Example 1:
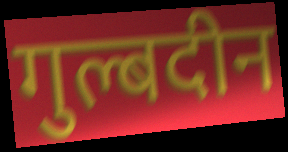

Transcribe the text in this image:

गुल्बदीन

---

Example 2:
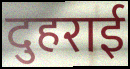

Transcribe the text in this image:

दुहराई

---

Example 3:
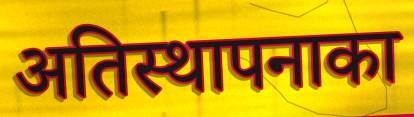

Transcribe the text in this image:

अतिस्थापनाका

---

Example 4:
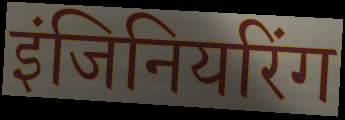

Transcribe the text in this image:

इंजिनियरिंग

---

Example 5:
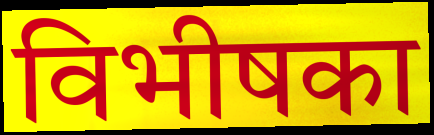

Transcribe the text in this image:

विभीषका